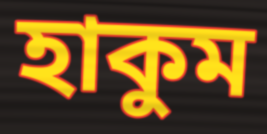
হাকুম